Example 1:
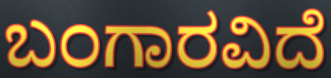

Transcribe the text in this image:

ಬಂಗಾರವಿದೆ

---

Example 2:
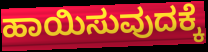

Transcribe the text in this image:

ಹಾಯಿಸುವುದಕ್ಕೆ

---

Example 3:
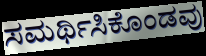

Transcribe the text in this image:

ಸಮರ್ಥಿಸಿಕೊಂಡವು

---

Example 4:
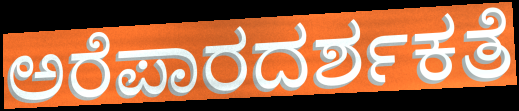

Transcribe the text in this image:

ಅರೆಪಾರದರ್ಶಕತೆ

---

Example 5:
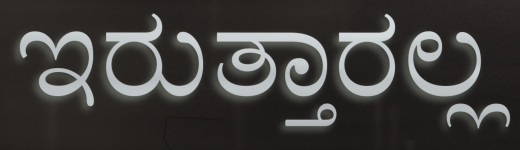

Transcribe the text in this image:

ಇರುತ್ತಾರಲ್ಲ